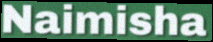
Naimisha